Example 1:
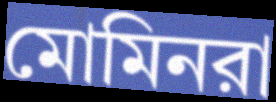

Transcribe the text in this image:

মোমিনরা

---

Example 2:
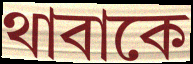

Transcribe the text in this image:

থাবাকে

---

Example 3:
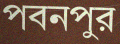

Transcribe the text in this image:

পবনপুর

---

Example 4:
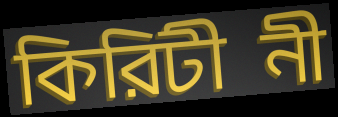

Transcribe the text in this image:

কিরিটীনী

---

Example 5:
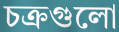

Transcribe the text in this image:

চক্রগুলো